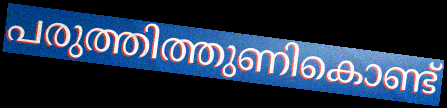
പരുത്തിത്തുണികൊണ്ട്